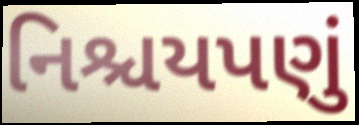
નિશ્ચયપણું